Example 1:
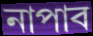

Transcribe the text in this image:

নাপাব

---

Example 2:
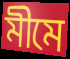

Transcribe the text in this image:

মীমে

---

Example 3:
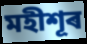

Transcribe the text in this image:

মহীশূৰ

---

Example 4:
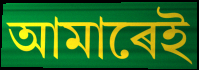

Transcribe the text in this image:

আমাৰেই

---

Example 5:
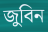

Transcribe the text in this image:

জুবিন